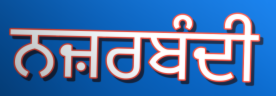
ਨਜ਼ਰਬੰਦੀ